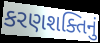
કરણશક્તિનું